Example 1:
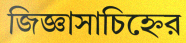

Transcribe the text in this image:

জিজ্ঞাসাচিহ্নের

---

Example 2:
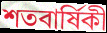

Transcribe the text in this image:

শতবার্ষিকী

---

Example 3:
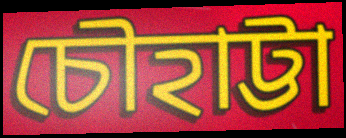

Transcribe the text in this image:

চৌহাট্টা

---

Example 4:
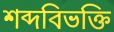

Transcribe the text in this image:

শব্দবিভক্তি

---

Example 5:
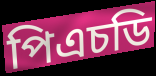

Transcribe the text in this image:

পিএচডি